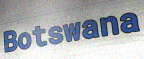
Botswana